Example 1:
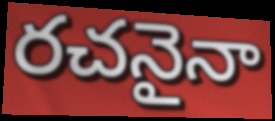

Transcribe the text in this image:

రచనైనా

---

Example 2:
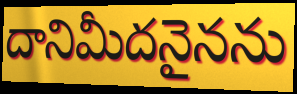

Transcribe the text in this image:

దానిమీదనైనను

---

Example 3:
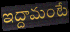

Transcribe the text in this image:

ఇద్దామంటే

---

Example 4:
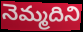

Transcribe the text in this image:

నెమ్మదిని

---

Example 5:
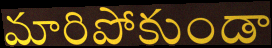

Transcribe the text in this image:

మారిపోకుండా